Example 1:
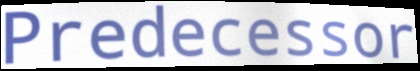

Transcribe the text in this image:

Predecessor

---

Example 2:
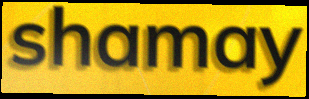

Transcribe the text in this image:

shamay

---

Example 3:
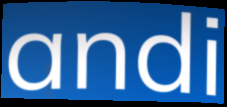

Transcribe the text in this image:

andi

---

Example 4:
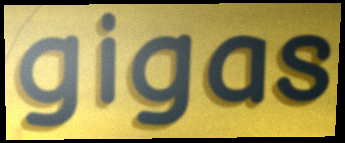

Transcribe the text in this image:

gigas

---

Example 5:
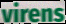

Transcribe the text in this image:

virens